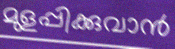
മുളപ്പിക്കുവാൻ